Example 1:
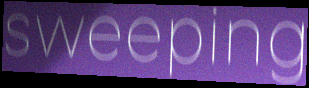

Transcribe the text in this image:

sweeping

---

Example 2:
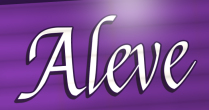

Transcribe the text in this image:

Aleve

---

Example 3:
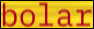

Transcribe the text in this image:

bolar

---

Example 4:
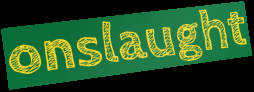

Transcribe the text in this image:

onslaught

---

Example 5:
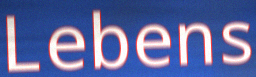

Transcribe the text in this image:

Lebens